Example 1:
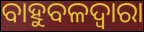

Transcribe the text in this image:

ବାହୁବଳଦ୍ୱାରା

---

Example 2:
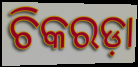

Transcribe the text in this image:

ଚିକରଡ଼ା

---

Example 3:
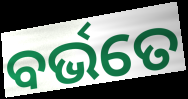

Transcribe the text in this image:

ବର୍ଭତେ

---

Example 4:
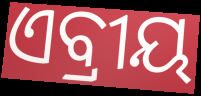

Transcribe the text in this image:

ଏବ୍ରୀୟ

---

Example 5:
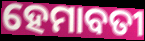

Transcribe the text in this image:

ହେମାବତୀ